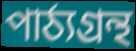
পাঠ্যগ্রন্থ